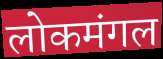
लोकमंगल